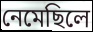
নেমেছিলে